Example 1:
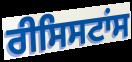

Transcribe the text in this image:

ਰੀਸਿਸਟਾਂਸ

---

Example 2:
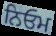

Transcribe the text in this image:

ਨਿਓਮ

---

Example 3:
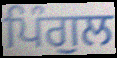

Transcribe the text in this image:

ਪਿੰਗੁਲ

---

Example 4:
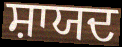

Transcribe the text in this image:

ਸ਼ਾਯਦ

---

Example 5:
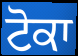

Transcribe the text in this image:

ਟੋਕਾ